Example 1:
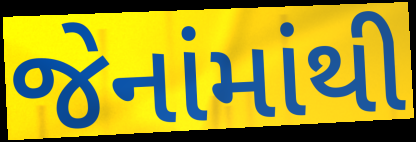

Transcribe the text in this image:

જેનાંમાંથી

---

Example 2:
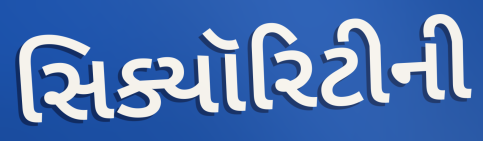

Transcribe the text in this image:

સિક્યૉરિટીની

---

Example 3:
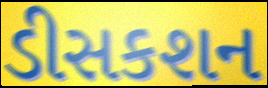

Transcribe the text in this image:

ડીસકશન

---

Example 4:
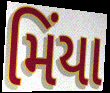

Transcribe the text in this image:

મિંયા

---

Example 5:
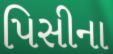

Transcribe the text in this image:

પિસીના